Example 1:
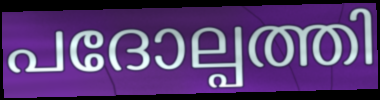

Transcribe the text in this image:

പദോല്പത്തി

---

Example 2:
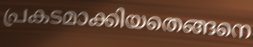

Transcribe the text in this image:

പ്രകടമാക്കിയതെങ്ങനെ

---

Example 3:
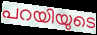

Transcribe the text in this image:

പറയിയുടെ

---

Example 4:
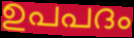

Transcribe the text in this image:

ഉപപദം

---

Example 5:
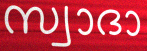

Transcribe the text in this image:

സ്വാദാ